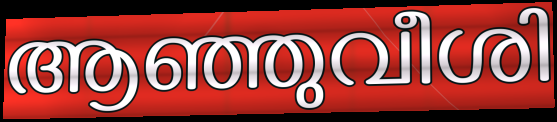
ആഞ്ഞുവീശി